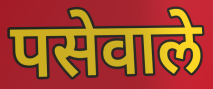
पसेवाले